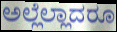
ಅಲ್ಲೆಲ್ಲಾದರೂ